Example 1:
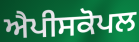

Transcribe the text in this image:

ਐਪੀਸਕੋਪਲ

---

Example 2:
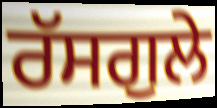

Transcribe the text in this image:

ਰੱਸਗੁਲੇ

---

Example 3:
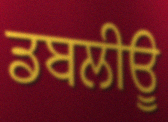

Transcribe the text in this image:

ਡਬਲੀਊ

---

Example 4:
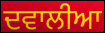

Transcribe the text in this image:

ਦਵਾਲੀਆ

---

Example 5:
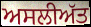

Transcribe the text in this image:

ਅਸਲੀਅੱਤ